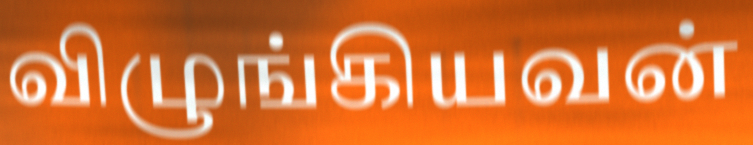
விழுங்கியவன்